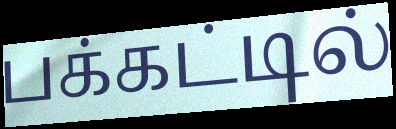
பக்கட்டில்